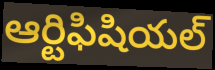
ఆర్టిఫిషియల్